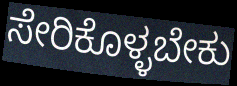
ಸೇರಿಕೊಳ್ಳಬೇಕು